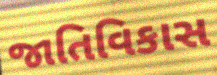
જાતિવિકાસ